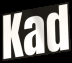
Kad